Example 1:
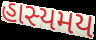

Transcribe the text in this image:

હાસ્યમય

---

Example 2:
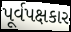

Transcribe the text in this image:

પૂર્વપક્ષકાર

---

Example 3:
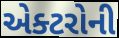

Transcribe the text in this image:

એક્ટરોની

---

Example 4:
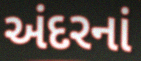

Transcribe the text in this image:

અંદરનાં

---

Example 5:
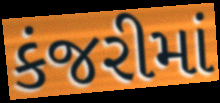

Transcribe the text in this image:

કંજરીમાં